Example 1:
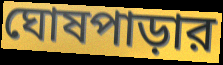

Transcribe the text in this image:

ঘোষপাড়ার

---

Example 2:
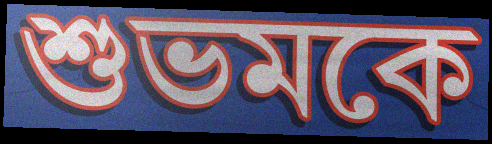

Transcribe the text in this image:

শুভমকে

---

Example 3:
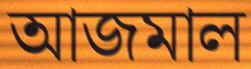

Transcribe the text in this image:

আজমাল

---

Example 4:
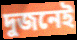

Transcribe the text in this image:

দুজনেই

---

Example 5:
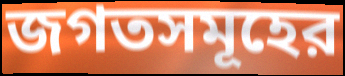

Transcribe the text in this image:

জগতসমূহের